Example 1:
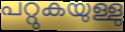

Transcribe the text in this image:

പറ്റുകയുള്ളു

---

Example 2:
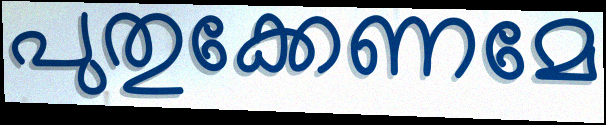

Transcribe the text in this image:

പുതുക്കേണമേ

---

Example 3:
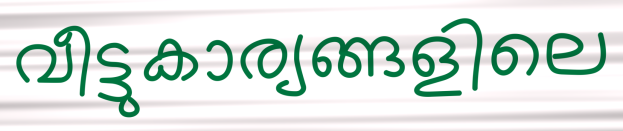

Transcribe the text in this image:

വീട്ടുകാര്യങ്ങളിലെ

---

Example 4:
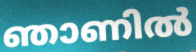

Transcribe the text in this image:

ഞാണിൽ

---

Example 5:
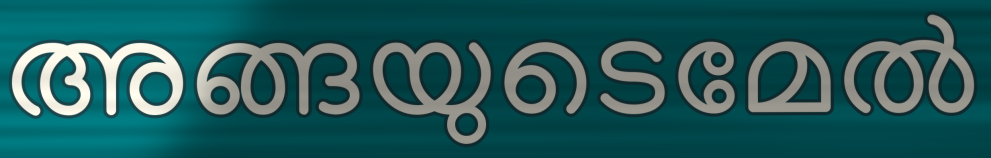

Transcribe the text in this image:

അങ്ങയുടെമേൽ